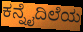
ಕನ್ನೈದಿಲೆಯ